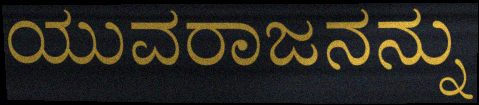
ಯುವರಾಜನನ್ನು